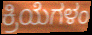
ಕ್ರಿಯೆಗಳಂ